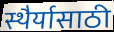
स्थैर्यासाठी